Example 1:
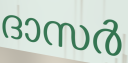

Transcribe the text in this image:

ദാസർ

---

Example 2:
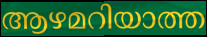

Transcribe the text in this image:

ആഴമറിയാത്ത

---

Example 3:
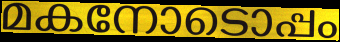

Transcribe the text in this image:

മകനോടൊപ്പം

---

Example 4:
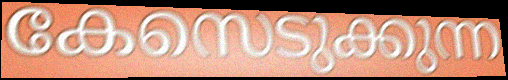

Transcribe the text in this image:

കേസെടുക്കുന്ന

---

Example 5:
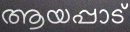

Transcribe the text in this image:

ആയപ്പാട്